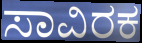
ಸಾವಿರಕ